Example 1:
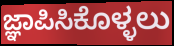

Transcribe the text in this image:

ಜ್ಞಾಪಿಸಿಕೊಳ್ಳಲು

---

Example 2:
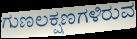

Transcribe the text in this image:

ಗುಣಲಕ್ಷಣಗಳಿರುವ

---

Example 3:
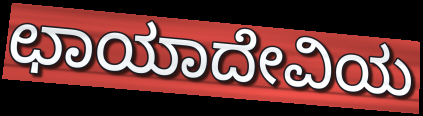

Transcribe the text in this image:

ಛಾಯಾದೇವಿಯ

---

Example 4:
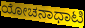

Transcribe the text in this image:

ಯೋಚನಾಧಾಟಿ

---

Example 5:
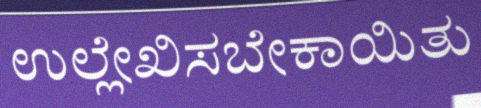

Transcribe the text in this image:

ಉಲ್ಲೇಖಿಸಬೇಕಾಯಿತು